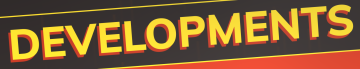
DEVELOPMENTS